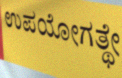
ಉಪಯೋಗತ್ಥೇ